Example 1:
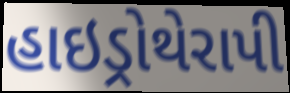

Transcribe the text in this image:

હાઇડ્રોથેરાપી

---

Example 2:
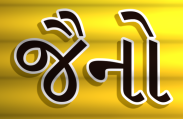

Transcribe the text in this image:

જૈનો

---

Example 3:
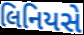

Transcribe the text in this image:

લિનિયસે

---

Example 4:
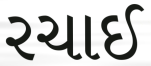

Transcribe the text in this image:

રચાઈ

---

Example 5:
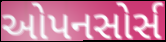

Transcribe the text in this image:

ઓપનસોર્સ